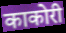
काकोरी